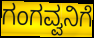
ಗಂಗವ್ವನಿಗೆ